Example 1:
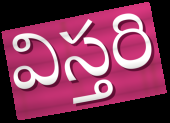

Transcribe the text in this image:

విస్తరి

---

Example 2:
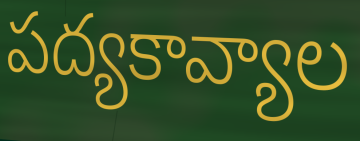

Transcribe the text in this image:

పద్యకావ్యాల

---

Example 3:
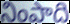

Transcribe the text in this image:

నింపాది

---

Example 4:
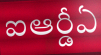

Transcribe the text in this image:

ఐఆర్డీఏ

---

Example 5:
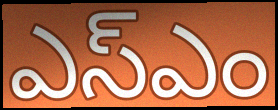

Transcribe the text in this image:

ఎస్ఎం